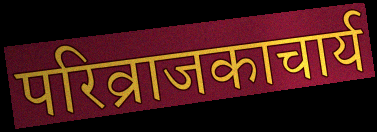
परिव्राजकाचार्य